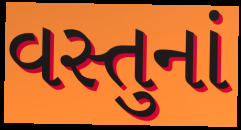
વસ્તુનાં